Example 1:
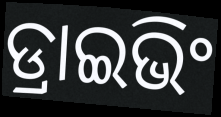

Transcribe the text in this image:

ଡ୍ରାଇଭିଂ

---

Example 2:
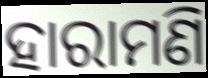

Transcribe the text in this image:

ହାରାମଣି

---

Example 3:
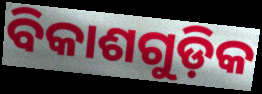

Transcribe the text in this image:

ବିକାଶଗୁଡ଼ିକ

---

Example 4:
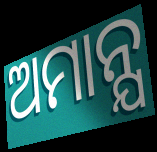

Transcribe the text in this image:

ଅମାନ୍ଯ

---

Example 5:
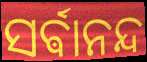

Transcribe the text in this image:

ସର୍ଵାନନ୍ଦ